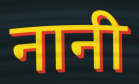
नानी